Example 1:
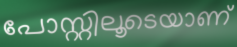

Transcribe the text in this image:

പോസ്റ്റിലൂടെയാണ്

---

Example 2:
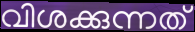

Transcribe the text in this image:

വിശക്കുന്നത്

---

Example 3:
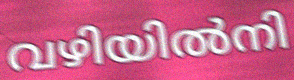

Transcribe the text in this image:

വഴിയിൽനി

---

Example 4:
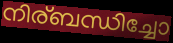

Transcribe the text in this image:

നിര്ബന്ധിച്ചോ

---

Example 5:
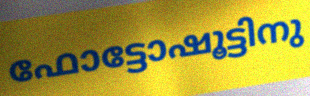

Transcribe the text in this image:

ഫോട്ടോഷൂട്ടിനു